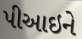
પીઆઇને